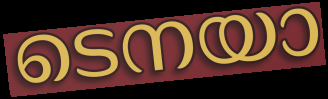
ടെനയാ